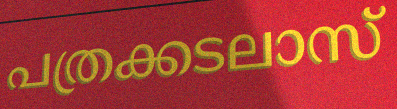
പത്രക്കടലാസ്